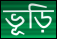
ভূড়ি